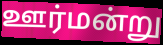
ஊர்மன்று